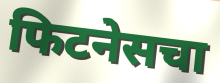
फिटनेसचा